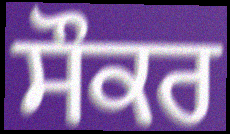
ਸੌਕਰ